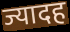
ज्यादह